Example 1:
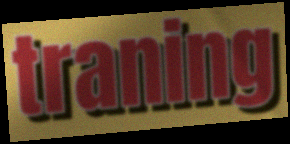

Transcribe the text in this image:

traning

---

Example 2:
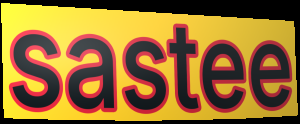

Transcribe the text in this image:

sastee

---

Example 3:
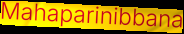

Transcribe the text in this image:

Mahaparinibbana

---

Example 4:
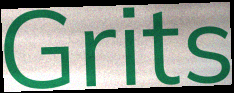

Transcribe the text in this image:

Grits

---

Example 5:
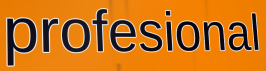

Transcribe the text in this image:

profesional